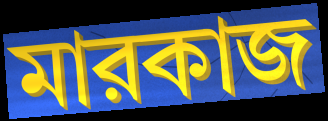
মারকাজ